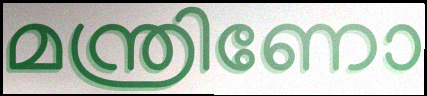
മന്ത്രിണോ